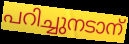
പറിച്ചുനടാന്